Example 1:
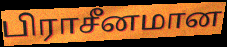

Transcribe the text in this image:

பிராசீனமான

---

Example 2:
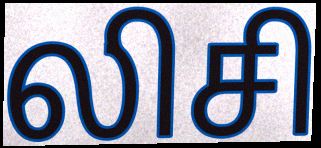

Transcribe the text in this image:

லிசி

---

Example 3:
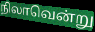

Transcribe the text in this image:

நிலாவென்று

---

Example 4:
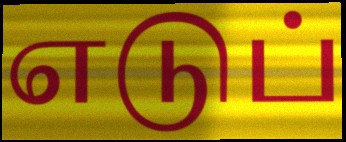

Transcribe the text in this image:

எடுப்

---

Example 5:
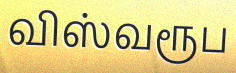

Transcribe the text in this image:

விஸ்வரூப